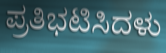
ಪ್ರತಿಭಟಿಸಿದಳು